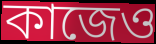
কাজেও